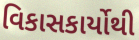
વિકાસકાર્યોથી